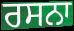
ਰਸਨਾ